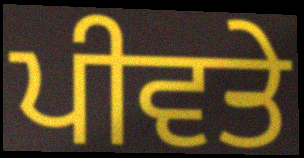
ਪੀਵਤੇ